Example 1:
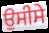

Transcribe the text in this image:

ਉਸੀਸੇ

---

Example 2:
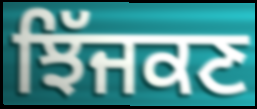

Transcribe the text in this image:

ਝਿੱਜਕਣ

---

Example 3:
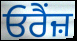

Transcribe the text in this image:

ਓਰੈਂਜ਼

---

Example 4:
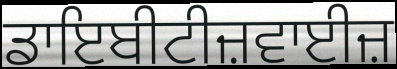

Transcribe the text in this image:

ਡਾਇਬੀਟੀਜ਼ਵਾਈਜ਼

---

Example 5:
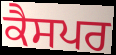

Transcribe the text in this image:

ਕੈਸਪਰ